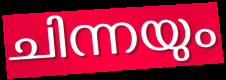
ചിന്നയും